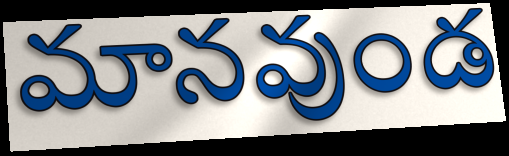
మానవుండ